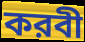
করবী